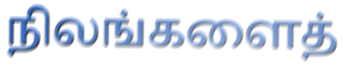
நிலங்களைத்